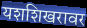
यशशिखरावर